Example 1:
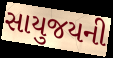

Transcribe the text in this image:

સાયુજયની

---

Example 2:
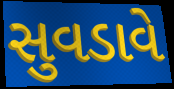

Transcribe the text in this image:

સુવડાવે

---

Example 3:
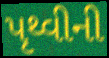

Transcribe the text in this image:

પૃથ્વીની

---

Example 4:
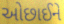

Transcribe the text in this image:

ઓછાઈને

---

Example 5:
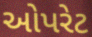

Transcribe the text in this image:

ઓપરેટ